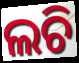
ଲଚି